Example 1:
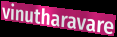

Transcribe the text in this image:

vinutharavare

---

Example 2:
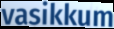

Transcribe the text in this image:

vasikkum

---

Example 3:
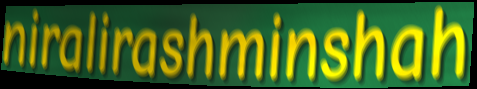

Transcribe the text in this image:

niralirashminshah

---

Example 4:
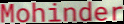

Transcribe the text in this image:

Mohinder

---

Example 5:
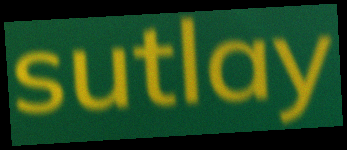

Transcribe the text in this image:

sutlay